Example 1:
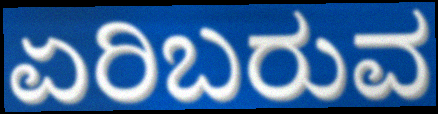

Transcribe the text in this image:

ಏರಿಬರುವ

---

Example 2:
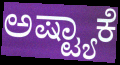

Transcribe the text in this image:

ಅಷ್ಟ್ಯಾಕೆ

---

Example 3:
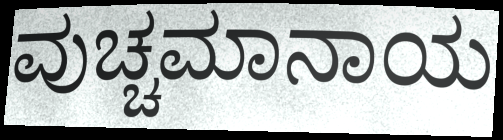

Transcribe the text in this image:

ವುಚ್ಚಮಾನಾಯ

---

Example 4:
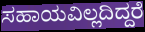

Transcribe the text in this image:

ಸಹಾಯವಿಲ್ಲದಿದ್ದರೆ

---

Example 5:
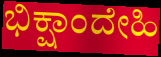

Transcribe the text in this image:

ಭಿಕ್ಷಾಂದೇಹಿ